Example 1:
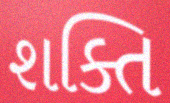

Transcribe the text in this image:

શક્તિ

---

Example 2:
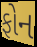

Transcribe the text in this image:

ફોન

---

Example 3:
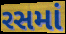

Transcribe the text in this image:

રસમાં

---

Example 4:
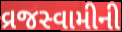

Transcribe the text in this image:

વ્રજસ્વામીની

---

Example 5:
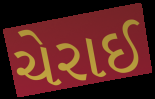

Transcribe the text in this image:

ચેરાઈ